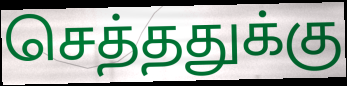
செத்ததுக்கு